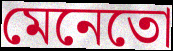
মেনেতো